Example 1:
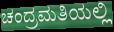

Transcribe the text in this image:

ಚಂದ್ರಮತಿಯಲ್ಲಿ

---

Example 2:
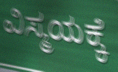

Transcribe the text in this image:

ವಿಸ್ಮಯಕ್ಕೆ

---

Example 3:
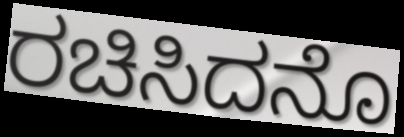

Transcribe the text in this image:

ರಚಿಸಿದನೊ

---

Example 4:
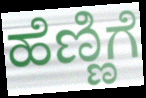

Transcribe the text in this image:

ಹೆಣ್ಣಿಗೆ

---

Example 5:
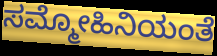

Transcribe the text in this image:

ಸಮ್ಮೋಹಿನಿಯಂತೆ